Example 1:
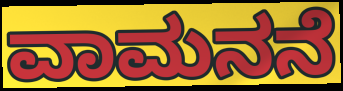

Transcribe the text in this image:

ವಾಮನನೆ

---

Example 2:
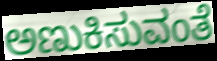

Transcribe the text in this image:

ಅಣುಕಿಸುವಂತೆ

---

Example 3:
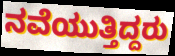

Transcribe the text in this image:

ನವೆಯುತ್ತಿದ್ದರು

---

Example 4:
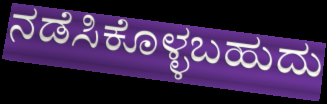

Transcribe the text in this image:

ನಡೆಸಿಕೊಳ್ಳಬಹುದು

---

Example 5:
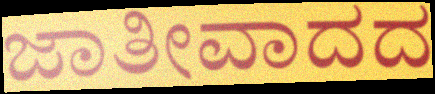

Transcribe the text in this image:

ಜಾತೀವಾದದ